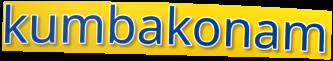
kumbakonam